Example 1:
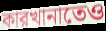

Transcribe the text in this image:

কারখানাতেও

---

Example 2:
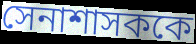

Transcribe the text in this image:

সেনাশাসককে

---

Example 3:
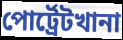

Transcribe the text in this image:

পোর্ট্রেটখানা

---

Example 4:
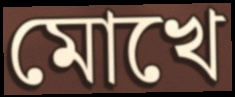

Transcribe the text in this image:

মোখে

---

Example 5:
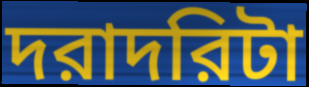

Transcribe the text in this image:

দরাদরিটা